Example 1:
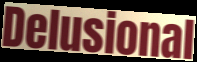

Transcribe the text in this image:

Delusional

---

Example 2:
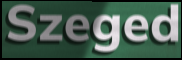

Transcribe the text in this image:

Szeged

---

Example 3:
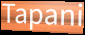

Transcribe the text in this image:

Tapani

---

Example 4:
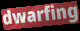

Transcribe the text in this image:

dwarfing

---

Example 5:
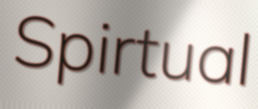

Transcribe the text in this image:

Spirtual